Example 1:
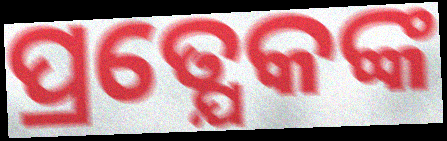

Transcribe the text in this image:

ପ୍ରତ୍ଯେକଙ୍କ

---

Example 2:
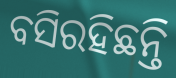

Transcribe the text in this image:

ବସିରହିଛନ୍ତି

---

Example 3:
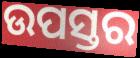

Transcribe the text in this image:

ଉପସ୍ତର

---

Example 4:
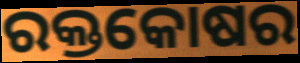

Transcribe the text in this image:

ରକ୍ତକୋଷର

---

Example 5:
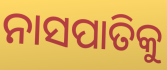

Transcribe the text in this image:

ନାସପାତିକୁ